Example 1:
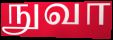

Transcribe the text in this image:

நுவா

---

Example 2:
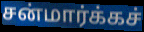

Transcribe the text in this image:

சன்மார்க்கச்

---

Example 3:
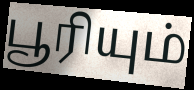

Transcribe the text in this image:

பூரியும்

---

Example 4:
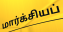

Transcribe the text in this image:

மார்க்சியப்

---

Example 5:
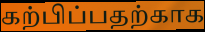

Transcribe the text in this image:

கற்பிப்பதற்காக